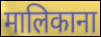
मालिकाना